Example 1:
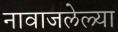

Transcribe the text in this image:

नावाजलेल्या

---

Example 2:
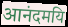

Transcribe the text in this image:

आनंदमयि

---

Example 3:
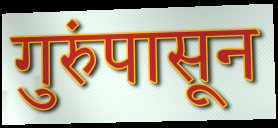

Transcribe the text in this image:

गुरुंपासून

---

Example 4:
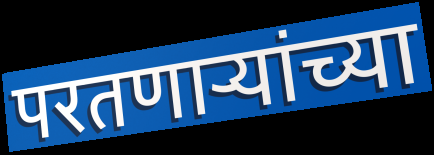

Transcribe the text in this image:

परतणाऱ्यांच्या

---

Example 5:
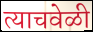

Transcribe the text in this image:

त्याचवेळी